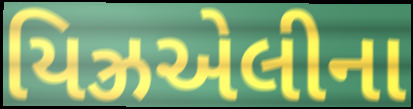
યિઝ્રએલીના